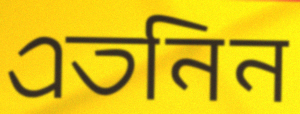
এতনিন